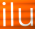
ilu